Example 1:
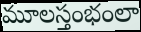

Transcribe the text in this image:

మూలస్తంభంలా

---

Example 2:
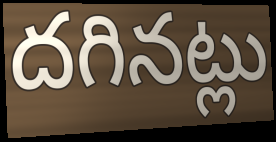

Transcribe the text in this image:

దగినట్లు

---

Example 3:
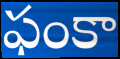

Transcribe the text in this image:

ఫంకా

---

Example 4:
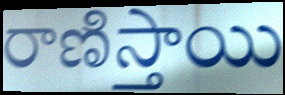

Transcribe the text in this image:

రాణిస్తాయి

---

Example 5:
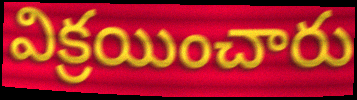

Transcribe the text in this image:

విక్రయించారు